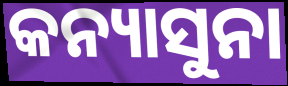
କନ୍ୟାସୁନା